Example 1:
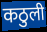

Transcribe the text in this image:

कठुली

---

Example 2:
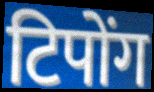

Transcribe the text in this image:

टिपोंग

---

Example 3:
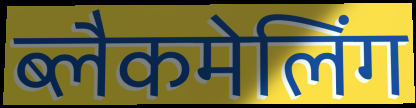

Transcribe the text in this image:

ब्लैकमेलिंग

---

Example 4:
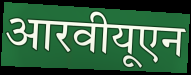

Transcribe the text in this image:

आरवीयूएन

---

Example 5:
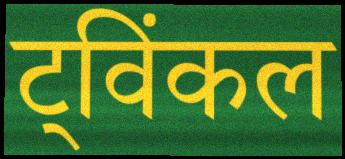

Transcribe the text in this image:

ट्विंकल